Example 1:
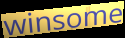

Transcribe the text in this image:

winsome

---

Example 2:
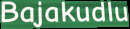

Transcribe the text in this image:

Bajakudlu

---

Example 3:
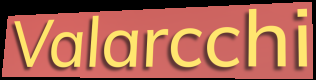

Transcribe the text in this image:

Valarcchi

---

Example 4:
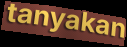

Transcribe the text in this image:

tanyakan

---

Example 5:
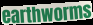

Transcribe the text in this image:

earthworms